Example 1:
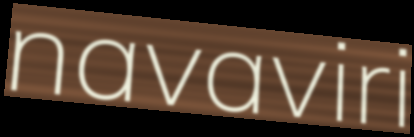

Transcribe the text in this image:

navaviri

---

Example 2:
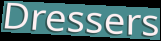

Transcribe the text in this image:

Dressers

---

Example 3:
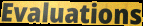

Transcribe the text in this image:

Evaluations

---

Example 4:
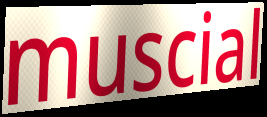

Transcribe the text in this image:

muscial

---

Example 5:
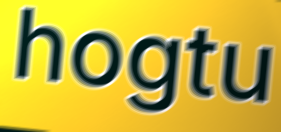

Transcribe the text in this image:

hogtu